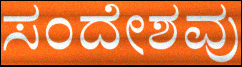
ಸಂದೇಶವು